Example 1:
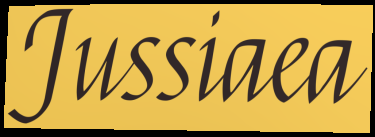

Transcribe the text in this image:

Jussiaea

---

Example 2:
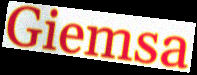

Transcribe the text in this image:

Giemsa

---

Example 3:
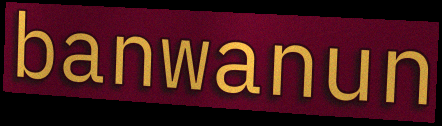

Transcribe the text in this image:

banwanun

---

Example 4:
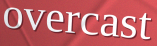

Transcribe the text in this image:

overcast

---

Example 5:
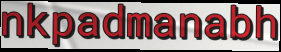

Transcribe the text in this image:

nkpadmanabh